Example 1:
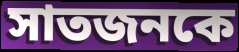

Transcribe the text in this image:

সাতজনকে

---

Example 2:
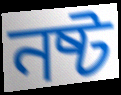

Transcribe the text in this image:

নষ্ট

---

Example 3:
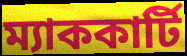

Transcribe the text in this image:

ম্যাককার্টি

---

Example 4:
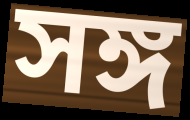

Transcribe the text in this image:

সঙ্গ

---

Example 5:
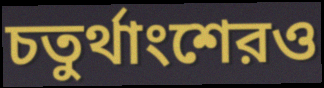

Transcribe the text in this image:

চতুর্থাংশেরও